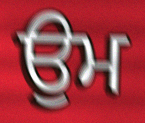
ਉਮ